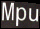
Mpu